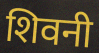
शिवनी